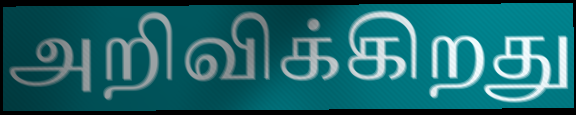
அறிவிக்கிறது